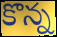
కొన్న